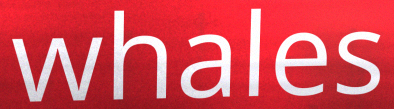
whales